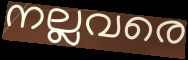
നല്ലവരെ